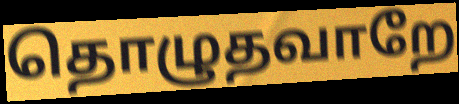
தொழுதவாறே